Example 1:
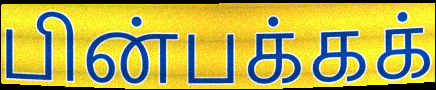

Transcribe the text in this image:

பின்பக்கக்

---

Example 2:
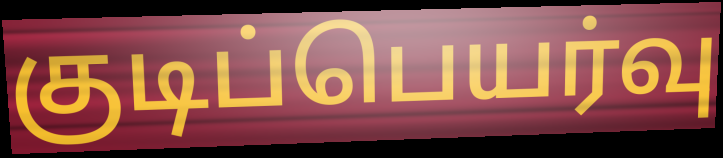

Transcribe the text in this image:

குடிப்பெயர்வு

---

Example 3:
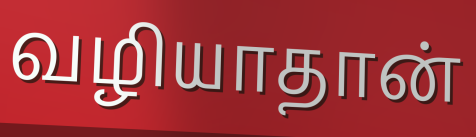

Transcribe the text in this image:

வழியாதான்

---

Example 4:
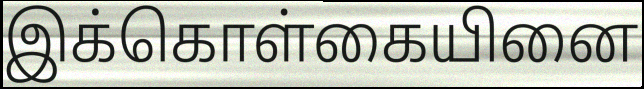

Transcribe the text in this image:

இக்கொள்கையினை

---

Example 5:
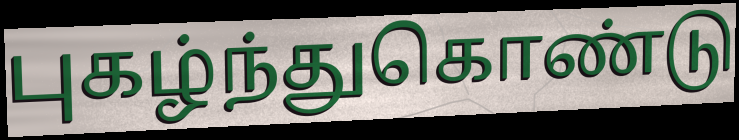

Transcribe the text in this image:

புகழ்ந்துகொண்டு